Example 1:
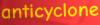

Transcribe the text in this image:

anticyclone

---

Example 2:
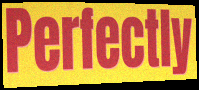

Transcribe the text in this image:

Perfectly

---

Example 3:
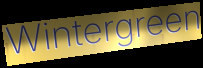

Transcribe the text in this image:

Wintergreen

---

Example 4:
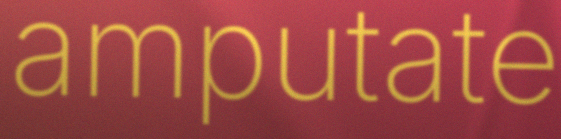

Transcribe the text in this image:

amputate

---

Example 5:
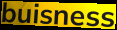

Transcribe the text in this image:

buisness